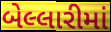
બેલ્લારીમાં